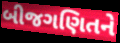
બીજગણિતને